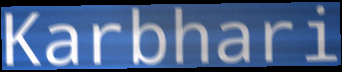
Karbhari